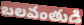
బలవంతుడి